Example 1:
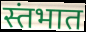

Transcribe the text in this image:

स्तंभात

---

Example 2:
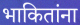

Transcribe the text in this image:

भाकितांना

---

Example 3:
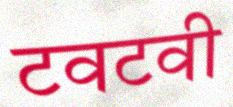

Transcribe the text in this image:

टवटवी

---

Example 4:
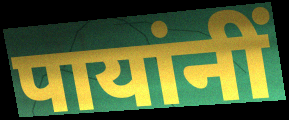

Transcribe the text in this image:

पायांनीं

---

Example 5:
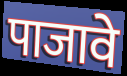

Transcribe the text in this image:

पाजावे